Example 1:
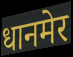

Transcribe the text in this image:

धानमेर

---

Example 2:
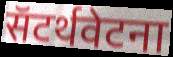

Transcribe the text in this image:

सॅटर्थवेटना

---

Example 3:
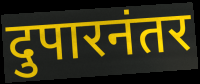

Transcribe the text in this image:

दुपारनंतर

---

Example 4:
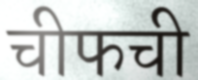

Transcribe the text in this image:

चीफची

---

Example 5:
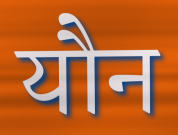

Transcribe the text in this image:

यौन